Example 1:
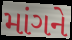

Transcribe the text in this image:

માંગને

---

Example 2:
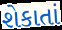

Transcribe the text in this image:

શેકાતાં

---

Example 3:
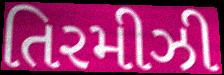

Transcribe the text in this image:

તિરમીઝી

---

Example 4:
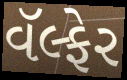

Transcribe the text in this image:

વૅલ્ફેર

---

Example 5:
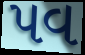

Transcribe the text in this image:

પવ